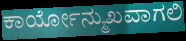
ಕಾರ್ಯೋನ್ಮುಖವಾಗಲಿ